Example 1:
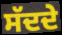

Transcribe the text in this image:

ਸੱਦਦੇ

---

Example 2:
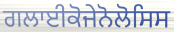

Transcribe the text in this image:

ਗਲਾਈਕੋਜੇਨੋਲੋਸਿਸ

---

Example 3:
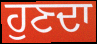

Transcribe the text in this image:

ਹੁਣਦਾ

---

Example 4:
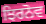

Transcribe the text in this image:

ਝਿਰਨੋਵ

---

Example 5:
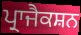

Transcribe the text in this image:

ਪ੍ਰਾਜੈਕਸ਼ਨ